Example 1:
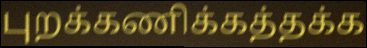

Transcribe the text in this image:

புறக்கணிக்கத்தக்க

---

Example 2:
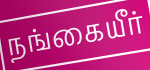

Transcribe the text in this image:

நங்கையீர்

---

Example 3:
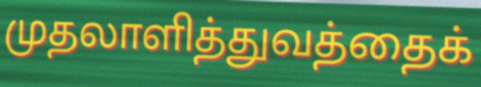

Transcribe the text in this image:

முதலாளித்துவத்தைக்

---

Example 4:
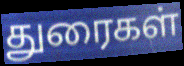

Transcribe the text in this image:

துரைகள்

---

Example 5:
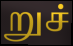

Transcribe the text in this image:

றுச்